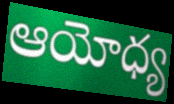
ఆయోధ్య